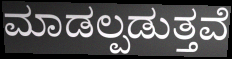
ಮಾಡಲ್ಪಡುತ್ತವೆ